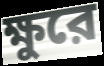
ক্ষুরে